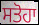
ਸਤੋਹਾ